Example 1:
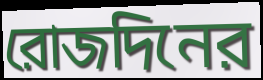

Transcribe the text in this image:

রোজদিনের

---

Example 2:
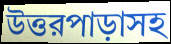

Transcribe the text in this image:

উত্তরপাড়াসহ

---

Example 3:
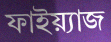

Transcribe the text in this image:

ফাইয়্যাজ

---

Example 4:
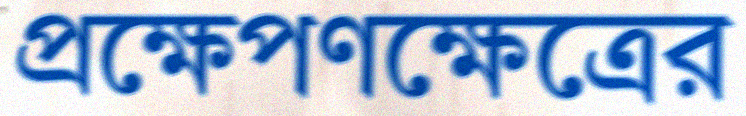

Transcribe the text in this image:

প্রক্ষেপণক্ষেত্রের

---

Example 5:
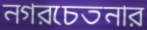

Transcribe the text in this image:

নগরচেতনার